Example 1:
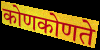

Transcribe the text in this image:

कोणकोणते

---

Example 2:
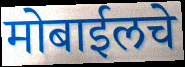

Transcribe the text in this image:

मोबाईलचे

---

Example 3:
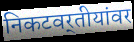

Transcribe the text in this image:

निकटवर्तीयांवर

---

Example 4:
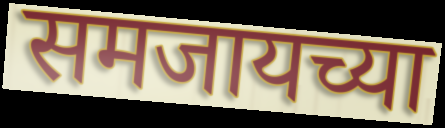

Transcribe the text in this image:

समजायच्या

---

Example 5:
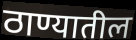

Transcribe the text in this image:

ठाण्यातील